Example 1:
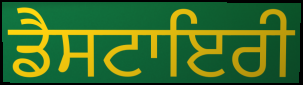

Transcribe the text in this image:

ਡੈਸਟਾਇਰੀ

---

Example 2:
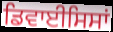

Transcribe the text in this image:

ਡਿਵਾਈਸਿਸਾਂ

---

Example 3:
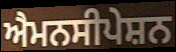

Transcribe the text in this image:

ਐਮਨਸੀਪੇਸ਼ਨ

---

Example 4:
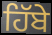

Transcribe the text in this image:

ਹਿੱਬੇ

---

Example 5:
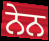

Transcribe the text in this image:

ਨੇਨ